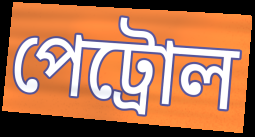
পেট্ৰোল